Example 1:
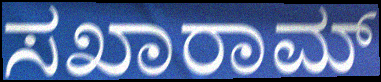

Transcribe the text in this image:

ಸಖಾರಾಮ್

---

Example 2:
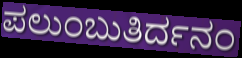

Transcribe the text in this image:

ಪಲುಂಬುತಿರ್ದನಂ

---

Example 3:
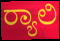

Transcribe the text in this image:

ರ‍್ಯಾಲಿ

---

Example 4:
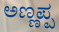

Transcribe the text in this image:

ಅಣ್ಣಪ್ಪ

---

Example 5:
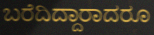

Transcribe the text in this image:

ಬರೆದಿದ್ದಾರಾದರೂ